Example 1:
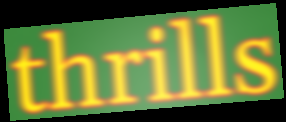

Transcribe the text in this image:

thrills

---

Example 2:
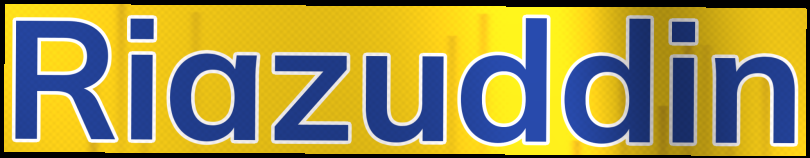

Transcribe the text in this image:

Riazuddin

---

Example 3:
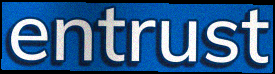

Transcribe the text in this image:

entrust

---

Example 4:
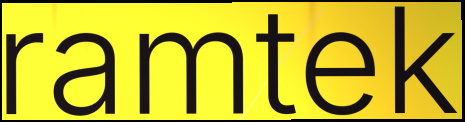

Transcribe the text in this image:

ramtek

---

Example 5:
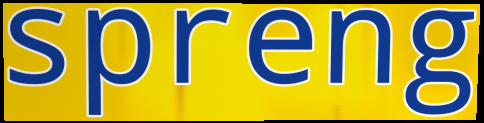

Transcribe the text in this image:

spreng